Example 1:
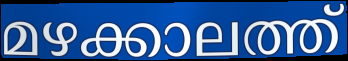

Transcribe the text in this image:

മഴക്കാലത്ത്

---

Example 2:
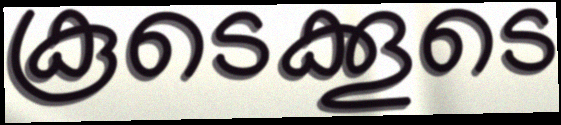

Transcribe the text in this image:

കൂടെക്കൂടെ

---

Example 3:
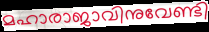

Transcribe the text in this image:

മഹാരാജാവിനുവേണ്ടി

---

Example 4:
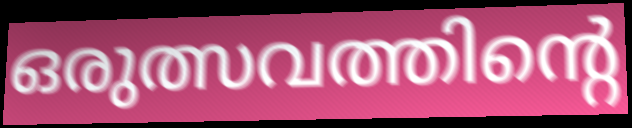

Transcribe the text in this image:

ഒരുത്സവത്തിന്റെ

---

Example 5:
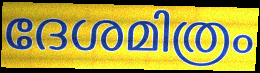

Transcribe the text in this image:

ദേശമിത്രം